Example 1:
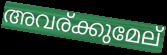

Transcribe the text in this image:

അവര്ക്കുമേല്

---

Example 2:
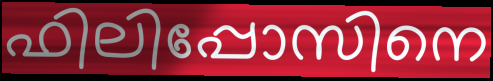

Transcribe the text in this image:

ഫിലിപ്പോസിനെ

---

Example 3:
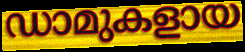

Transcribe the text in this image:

ഡാമുകളായ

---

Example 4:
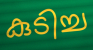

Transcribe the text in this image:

കുടിച്ച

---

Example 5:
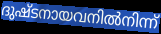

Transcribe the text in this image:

ദുഷ്ടനായവനിൽനിന്ന്